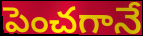
పెంచగానే